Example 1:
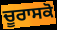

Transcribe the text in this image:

ਚੂਰਾਸਕੋ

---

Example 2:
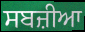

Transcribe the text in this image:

ਸਬਜ਼ੀਆ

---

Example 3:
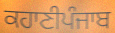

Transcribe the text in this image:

ਕਹਾਣੀਪੰਜਾਬ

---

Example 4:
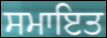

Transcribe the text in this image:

ਸਮਾਇਤ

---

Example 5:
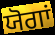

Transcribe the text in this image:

ਯੋਗਾਂ